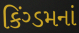
કિંગ્ડમનાં